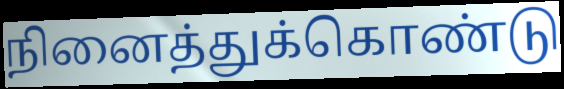
நினைத்துக்கொண்டு